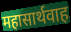
महासार्थवाह